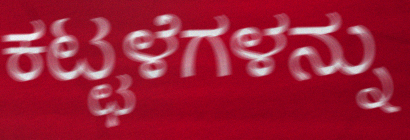
ಕಟ್ಟಳೆಗಳನ್ನು